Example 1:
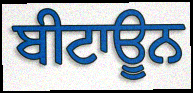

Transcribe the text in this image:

ਬੀਟਾਊਨ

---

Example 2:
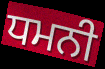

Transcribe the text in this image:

ਧਮਨੀ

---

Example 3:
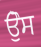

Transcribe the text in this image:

ਉੋਸ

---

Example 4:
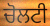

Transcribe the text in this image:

ਚੋਲਟੀ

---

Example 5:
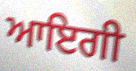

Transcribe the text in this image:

ਆਇਗੀ